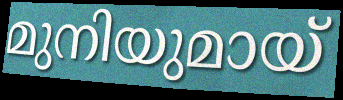
മുനിയുമായ്